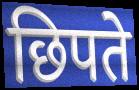
छिपते